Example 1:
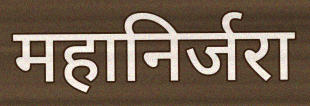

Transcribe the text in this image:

महानिर्जरा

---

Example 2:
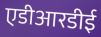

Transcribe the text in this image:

एडीआरडीई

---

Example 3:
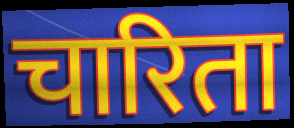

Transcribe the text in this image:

चारिता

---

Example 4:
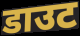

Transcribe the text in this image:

डाउट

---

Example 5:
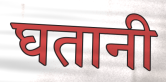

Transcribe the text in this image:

घतानी